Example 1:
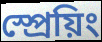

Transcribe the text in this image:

স্প্রেয়িং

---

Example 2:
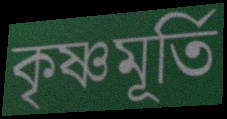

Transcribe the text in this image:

কৃষ্ণমূর্তি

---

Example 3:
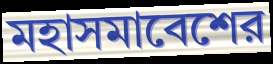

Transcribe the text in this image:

মহাসমাবেশের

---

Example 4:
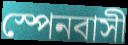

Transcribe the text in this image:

স্পেনবাসী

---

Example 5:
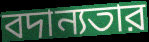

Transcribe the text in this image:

বদান্যতার